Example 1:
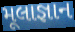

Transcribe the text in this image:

મૂલાજ્ઞાન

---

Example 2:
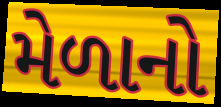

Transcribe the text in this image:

મેળાનો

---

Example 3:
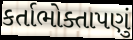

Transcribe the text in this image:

કર્તાભોક્તાપણું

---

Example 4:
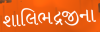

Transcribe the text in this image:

શાલિભદ્રજીના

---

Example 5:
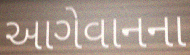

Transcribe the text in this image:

આગેવાનના